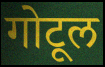
गोटूल